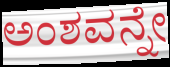
ಅಂಶವನ್ನೇ